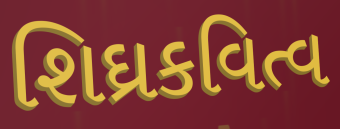
શિઘ્રકવિત્વ